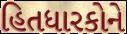
હિતધારકોને